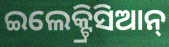
ଇଲେକ୍ଟ୍ରିସିଆନ୍